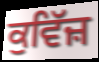
ਕੁਵਿੱਜ਼